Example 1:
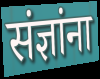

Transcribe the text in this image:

संज्ञांना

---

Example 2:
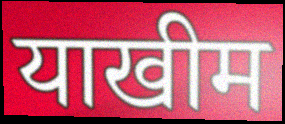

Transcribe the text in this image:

याखीम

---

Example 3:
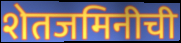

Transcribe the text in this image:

शेतजमिनीची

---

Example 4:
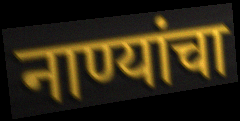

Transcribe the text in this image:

नाण्यांचा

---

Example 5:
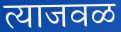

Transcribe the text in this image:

त्याजवळ